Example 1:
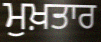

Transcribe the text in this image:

ਮੁਖ਼ਤਾਰ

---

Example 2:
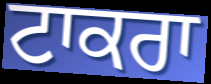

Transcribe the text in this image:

ਟਾਕਰਾ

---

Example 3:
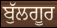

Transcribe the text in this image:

ਬੁੱਲਗੂਰ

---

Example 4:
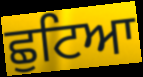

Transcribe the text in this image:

ਛੁਟਿਆ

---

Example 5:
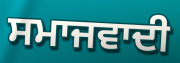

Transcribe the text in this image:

ਸਮਾਜਵਾਦੀ